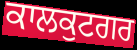
ਕਾਲਕੁਟਗਰ